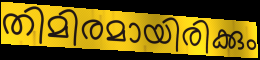
തിമിരമായിരിക്കും